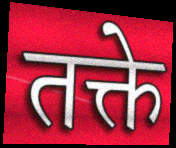
तक्ते